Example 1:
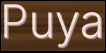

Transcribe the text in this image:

Puya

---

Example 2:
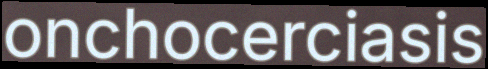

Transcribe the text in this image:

onchocerciasis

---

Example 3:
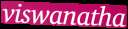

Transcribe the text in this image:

viswanatha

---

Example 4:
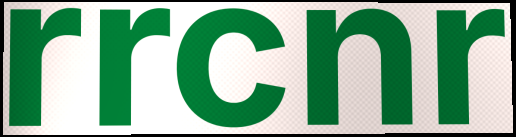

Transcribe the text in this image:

rrcnr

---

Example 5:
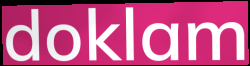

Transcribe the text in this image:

doklam